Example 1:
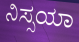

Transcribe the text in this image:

ನಿಸ್ಸಯಾ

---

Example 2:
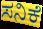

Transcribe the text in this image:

ಸನಿಕೆ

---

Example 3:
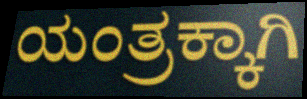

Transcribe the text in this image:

ಯಂತ್ರಕ್ಕಾಗಿ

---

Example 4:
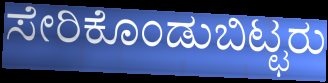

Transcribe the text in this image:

ಸೇರಿಕೊಂಡುಬಿಟ್ಟರು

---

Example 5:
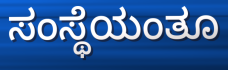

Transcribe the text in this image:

ಸಂಸ್ಥೆಯಂತೂ